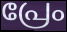
പ്രേം